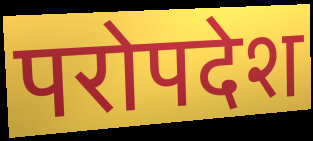
परोपदेश